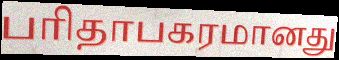
பரிதாபகரமானது